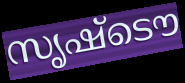
സൃഷ്ടൌ